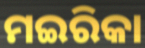
ମଇରିକା